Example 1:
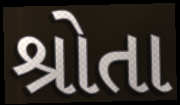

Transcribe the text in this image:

શ્રોતા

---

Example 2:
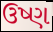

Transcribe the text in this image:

ઉષ્ણ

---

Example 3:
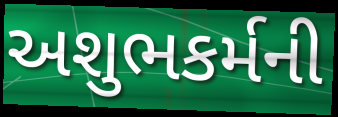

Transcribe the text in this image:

અશુભકર્મની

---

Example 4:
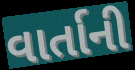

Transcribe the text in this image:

વાર્તાની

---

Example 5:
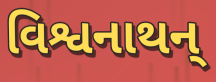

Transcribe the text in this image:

વિશ્વનાથન્